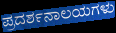
ಪ್ರದರ್ಶನಾಲಯಗಳು